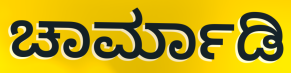
ಚಾರ್ಮಾಡಿ